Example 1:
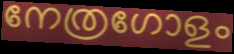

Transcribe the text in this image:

നേത്രഗോളം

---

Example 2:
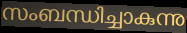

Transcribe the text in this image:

സംബന്ധിച്ചാകുന്നു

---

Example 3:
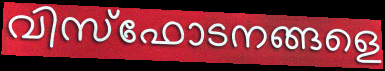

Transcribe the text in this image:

വിസ്ഫോടനങ്ങളെ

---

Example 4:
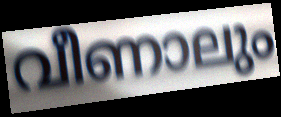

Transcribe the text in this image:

വീണാലും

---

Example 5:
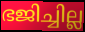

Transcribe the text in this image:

ഭജിച്ചില്ല